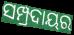
ସମ୍ପ୍ରଦାୟର